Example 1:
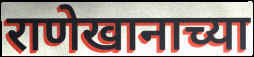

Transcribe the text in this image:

राणेखानाच्या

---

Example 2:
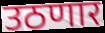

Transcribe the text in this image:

उठणार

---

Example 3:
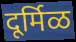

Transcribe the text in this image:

दूर्मिळ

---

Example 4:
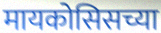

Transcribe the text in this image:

मायकोसिसच्या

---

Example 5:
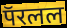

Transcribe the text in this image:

पॅरलल